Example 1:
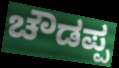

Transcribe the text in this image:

ಚೌಡಪ್ಪ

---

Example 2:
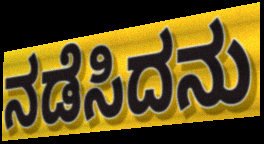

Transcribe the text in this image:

ನಡೆಸಿದನು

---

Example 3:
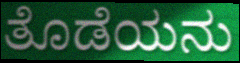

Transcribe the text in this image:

ತೊಡೆಯನು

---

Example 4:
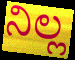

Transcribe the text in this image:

ನಿಲ್ಲ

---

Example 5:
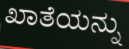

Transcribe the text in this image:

ಖಾತೆಯನ್ನು